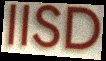
IISD